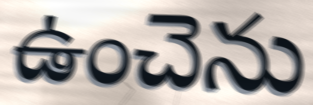
ఉంచెను